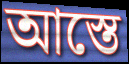
আস্তে